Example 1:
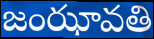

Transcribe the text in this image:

జంఝావతి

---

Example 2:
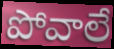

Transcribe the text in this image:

పోవాలే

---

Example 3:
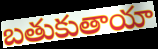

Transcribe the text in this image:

బతుకుతాయా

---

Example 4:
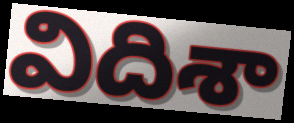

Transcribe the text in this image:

విదిశా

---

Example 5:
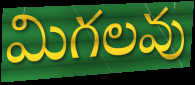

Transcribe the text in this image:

మిగలవు